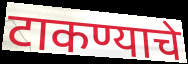
टाकण्याचे